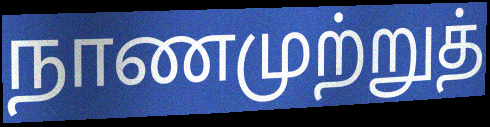
நாணமுற்றுத்